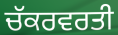
ਚੱਕਰਵਰਤੀ